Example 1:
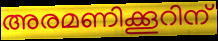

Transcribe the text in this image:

അരമണിക്കൂറിന്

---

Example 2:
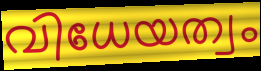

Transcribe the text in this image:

വിധേയത്വം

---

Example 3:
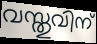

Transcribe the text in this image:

വസ്തുവിന്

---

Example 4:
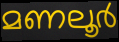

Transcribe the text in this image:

മണലൂർ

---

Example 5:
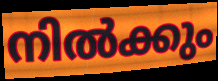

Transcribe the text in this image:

നിൽക്കും